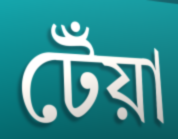
টেঁয়া